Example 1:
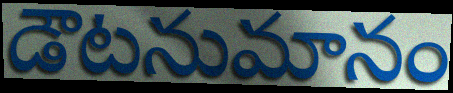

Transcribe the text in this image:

డౌటనుమానం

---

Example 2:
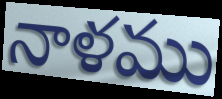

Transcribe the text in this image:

నాళము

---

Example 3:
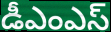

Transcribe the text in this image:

డీఎంఎస్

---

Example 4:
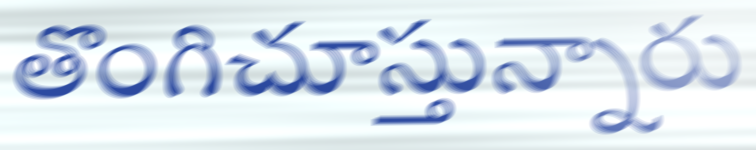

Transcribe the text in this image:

తొంగిచూస్తున్నారు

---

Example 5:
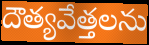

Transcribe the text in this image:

దౌత్యవేత్తలను